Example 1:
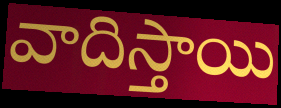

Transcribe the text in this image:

వాదిస్తాయి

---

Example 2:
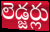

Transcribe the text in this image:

లెడ్జర్లు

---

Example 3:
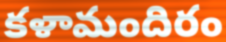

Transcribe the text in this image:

కళామందిరం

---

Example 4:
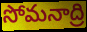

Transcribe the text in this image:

సోమనాద్రి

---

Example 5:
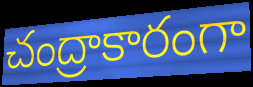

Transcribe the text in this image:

చంద్రాకారంగా